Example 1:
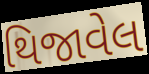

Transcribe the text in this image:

થિજાવેલ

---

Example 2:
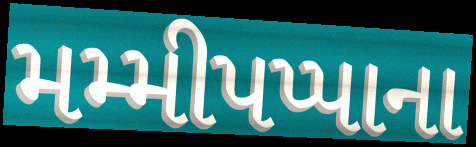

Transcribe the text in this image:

મમ્મીપપ્પાના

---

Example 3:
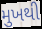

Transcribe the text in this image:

મુખથી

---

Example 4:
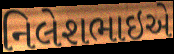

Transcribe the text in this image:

નિલેશભાઇએ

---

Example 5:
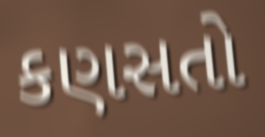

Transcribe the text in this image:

કણસતો